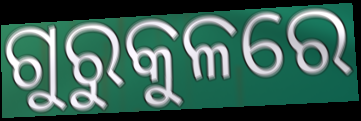
ଗୁରୁକୁଳରେ